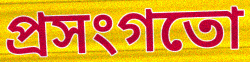
প্ৰসংগতো